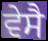
ਵੇਸੈ